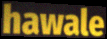
hawale